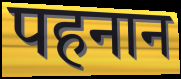
पहनान